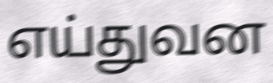
எய்துவன